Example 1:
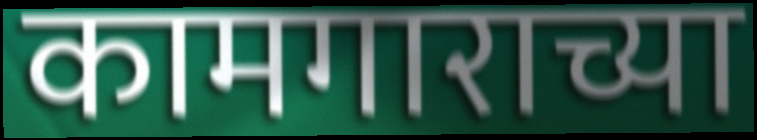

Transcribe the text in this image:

कामगाराच्या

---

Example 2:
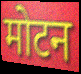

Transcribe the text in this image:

मोटन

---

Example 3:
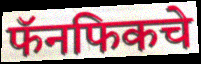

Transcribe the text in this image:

फॅनफिकचे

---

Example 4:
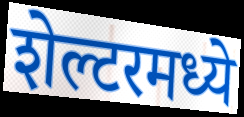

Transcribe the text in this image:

शेल्टरमध्ये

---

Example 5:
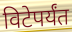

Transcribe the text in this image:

विटेपर्यंत